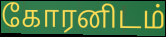
கோரனிடம்